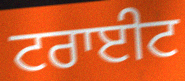
ਟਰਾਈਟ